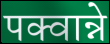
पक्वान्ने